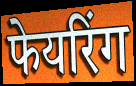
फेयरिंग